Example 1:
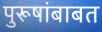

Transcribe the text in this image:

पुरूषांबाबत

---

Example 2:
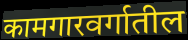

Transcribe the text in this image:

कामगारवर्गातील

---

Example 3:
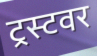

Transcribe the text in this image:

ट्रस्टवर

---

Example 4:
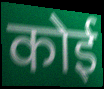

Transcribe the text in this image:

कोई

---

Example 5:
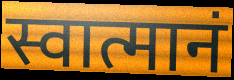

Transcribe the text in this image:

स्वात्मानं